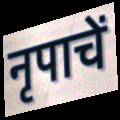
नृपाचें